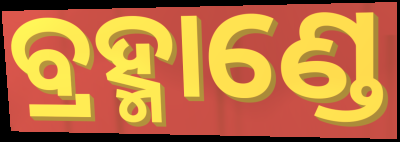
ବ୍ରହ୍ମାଣ୍ଡେ